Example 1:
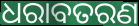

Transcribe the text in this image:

ଧରାବତରଣ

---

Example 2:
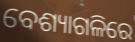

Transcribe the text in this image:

ବେଶ୍ୟାଗଳିରେ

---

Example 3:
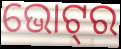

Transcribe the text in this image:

ଭୋଟ୍‍ର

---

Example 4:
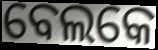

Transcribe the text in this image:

ବେଲକେ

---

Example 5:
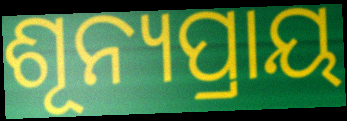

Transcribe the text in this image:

ଶୂନ୍ୟପ୍ରାୟ